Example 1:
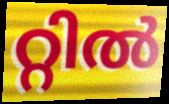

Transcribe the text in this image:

റ്റിൽ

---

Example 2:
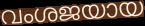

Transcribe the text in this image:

വംശജയായ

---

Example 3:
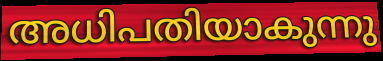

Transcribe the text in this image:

അധിപതിയാകുന്നു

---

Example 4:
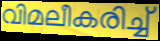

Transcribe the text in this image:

വിമലീകരിച്ച്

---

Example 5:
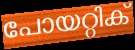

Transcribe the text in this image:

പോയറ്റിക്